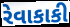
રેવાકાકી